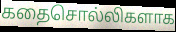
கதைசொல்லிகளாக